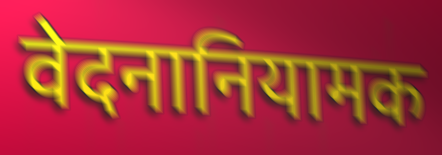
वेदनानियामक